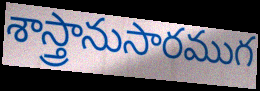
శాస్త్రానుసారముగ